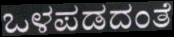
ಒಳಪಡದಂತೆ